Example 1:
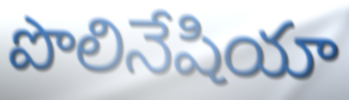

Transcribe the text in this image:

పొలినేషియా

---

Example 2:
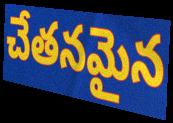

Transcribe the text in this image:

చేతనమైన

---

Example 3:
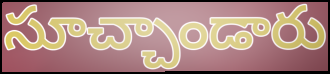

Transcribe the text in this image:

సూచ్చాండారు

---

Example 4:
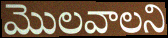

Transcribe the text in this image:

మొలవాలని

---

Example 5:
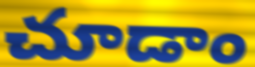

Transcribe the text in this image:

చూడాం